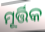
ମୂର୍ତ୍ତିକ